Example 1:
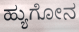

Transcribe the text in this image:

ಹ್ಯುಗೋನ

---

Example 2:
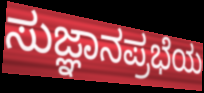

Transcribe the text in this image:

ಸುಜ್ಞಾನಪ್ರಭೆಯ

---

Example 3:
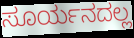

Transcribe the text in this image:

ಸೂರ್ಯನದಲ್ಲ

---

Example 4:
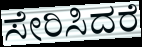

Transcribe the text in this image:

ಸೇರಿಸಿದರೆ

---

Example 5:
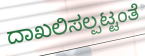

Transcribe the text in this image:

ದಾಖಲಿಸಲ್ಪಟ್ಟಂತೆ